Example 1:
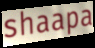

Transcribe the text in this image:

shaapa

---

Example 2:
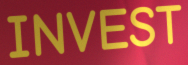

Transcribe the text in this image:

INVEST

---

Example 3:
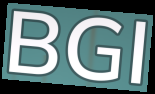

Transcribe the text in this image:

BGI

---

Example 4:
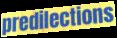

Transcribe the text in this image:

predilections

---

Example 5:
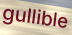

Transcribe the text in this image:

gullible